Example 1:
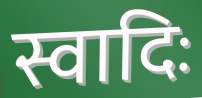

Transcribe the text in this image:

स्वादिः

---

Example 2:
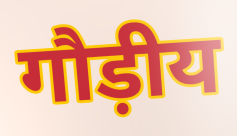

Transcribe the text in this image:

गौड़ीय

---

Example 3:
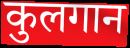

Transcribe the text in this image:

कुलगान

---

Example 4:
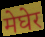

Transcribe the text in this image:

मेघेर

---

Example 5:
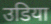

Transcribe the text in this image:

उडिया